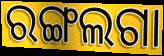
ରଙ୍ଗଲଗା